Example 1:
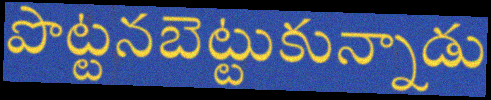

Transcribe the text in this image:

పొట్టనబెట్టుకున్నాడు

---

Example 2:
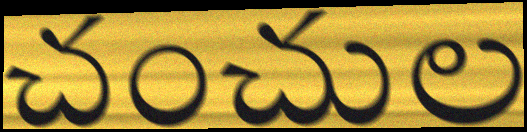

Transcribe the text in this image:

చంచుల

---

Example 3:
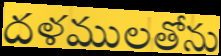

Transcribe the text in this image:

దళములతోను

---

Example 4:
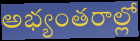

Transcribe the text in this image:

అభ్యంతరాల్లో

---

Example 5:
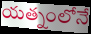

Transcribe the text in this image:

యత్నంలోనే